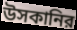
উসকানির